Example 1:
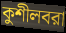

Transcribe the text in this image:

কুশীলবরা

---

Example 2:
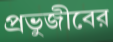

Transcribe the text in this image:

প্রভুজীবের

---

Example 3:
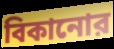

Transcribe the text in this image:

বিকানোর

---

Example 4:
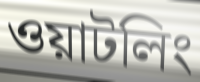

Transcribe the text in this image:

ওয়াটলিং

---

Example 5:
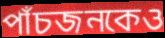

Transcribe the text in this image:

পাঁচজনকেও